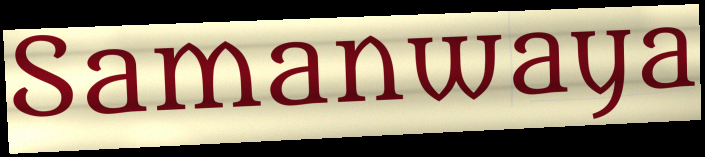
Samanwaya